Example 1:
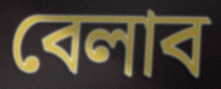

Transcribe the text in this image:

বেলাব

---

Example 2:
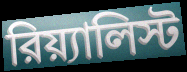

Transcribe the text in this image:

রিয়্যালিস্ট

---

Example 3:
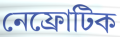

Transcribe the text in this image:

নেফ্রোটিক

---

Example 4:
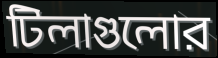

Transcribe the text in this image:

টিলাগুলোর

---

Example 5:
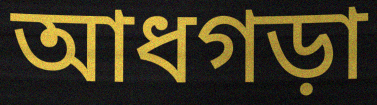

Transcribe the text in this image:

আধগড়া